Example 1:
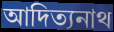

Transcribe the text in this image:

আদিত্যনাথ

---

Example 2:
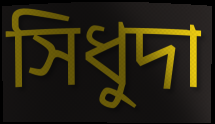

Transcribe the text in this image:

সিধুদা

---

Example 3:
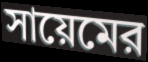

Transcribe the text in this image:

সায়েমের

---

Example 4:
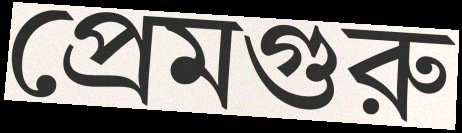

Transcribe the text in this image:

প্রেমগুরু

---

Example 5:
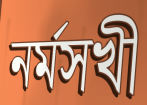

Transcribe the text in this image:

নর্মসখী